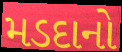
મડદાનો